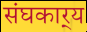
संघकार्य